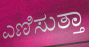
ಎಣಿಸುತ್ತಾ